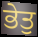
ਭੇਤੁ